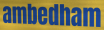
ambedham